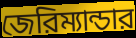
জেরিম্যান্ডার